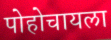
पोहोचायला